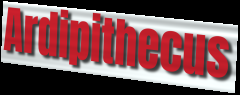
Ardipithecus